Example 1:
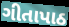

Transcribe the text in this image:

ગીતાપાઠ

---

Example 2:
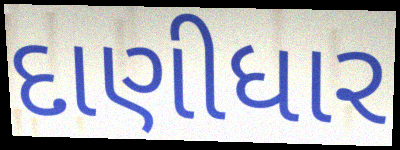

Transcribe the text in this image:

દાણીધાર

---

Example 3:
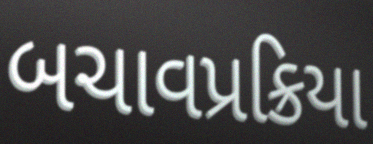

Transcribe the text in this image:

બચાવપ્રક્રિયા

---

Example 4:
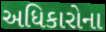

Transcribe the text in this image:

અધિકારોના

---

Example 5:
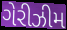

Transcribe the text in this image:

ગેરીઝીમ